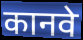
कानवे